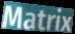
Matrix